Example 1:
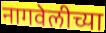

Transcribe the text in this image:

नागवेलीच्या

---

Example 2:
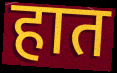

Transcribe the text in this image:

हात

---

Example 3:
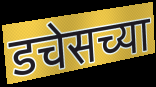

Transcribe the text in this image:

डचेसच्या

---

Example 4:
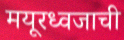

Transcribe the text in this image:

मयूरध्वजाची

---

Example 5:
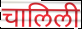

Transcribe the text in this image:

चालिली